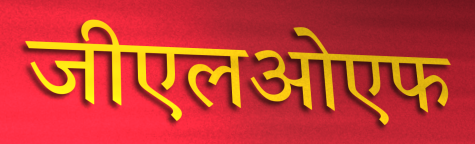
जीएलओएफ